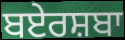
ਬਏਰਸ਼ਬਾ